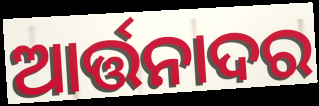
ଆର୍ତ୍ତନାଦର